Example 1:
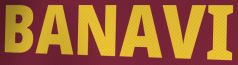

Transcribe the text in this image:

BANAVI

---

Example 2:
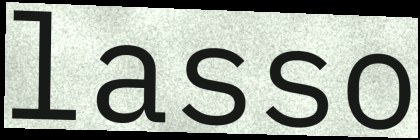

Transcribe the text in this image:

lasso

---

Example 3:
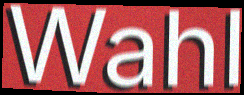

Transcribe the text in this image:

Wahl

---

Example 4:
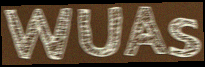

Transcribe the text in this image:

WUAs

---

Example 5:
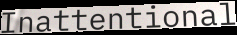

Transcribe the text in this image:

Inattentional